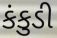
કંકુડી